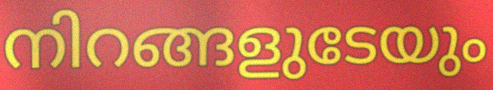
നിറങ്ങളുടേയും